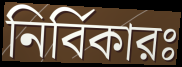
নির্বিকারঃ